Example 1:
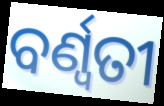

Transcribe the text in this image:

ବର୍ଣ୍ବତୀ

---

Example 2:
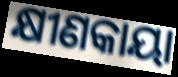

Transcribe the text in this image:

କ୍ଷୀଣକାୟା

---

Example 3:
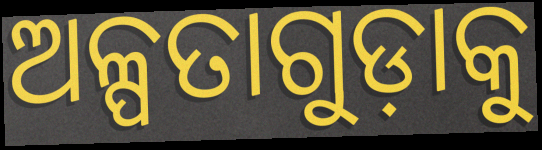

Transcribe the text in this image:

ଅଳ୍ପତାଗୁଡ଼ାକୁ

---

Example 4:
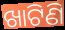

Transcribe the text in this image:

ଖାଟିଣି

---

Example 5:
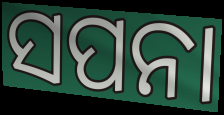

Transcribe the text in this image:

ସପନା